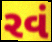
રવં